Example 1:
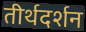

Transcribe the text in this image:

तीर्थदर्शन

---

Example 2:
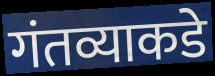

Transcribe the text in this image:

गंतव्याकडे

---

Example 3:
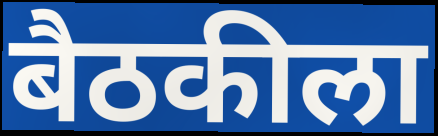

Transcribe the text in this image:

बैठकीला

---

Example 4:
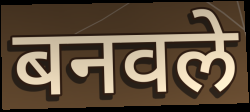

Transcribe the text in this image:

बनवले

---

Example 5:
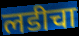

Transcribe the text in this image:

लडीचा